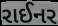
રાઈનર